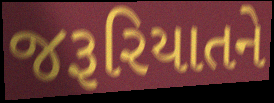
જરૂરિયાતને